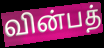
வின்பத்